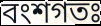
বংশগতঃ